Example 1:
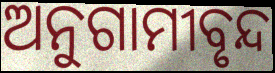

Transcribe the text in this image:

ଅନୁଗାମୀବୃନ୍ଦ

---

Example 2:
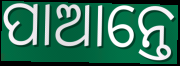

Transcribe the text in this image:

ପାଆନ୍ତେ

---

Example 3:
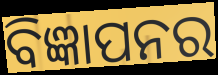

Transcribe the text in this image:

ବିଜ୍ଞାପନର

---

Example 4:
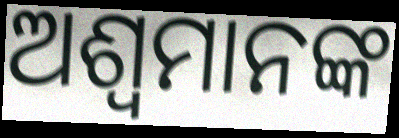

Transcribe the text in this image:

ଅଶ୍ୱମାନଙ୍କ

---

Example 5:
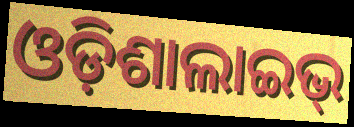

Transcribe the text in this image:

ଓଡ଼ିଶାଲାଇଭ୍